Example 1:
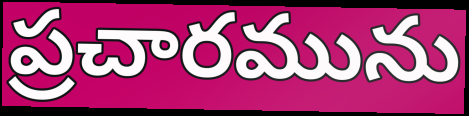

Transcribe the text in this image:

ప్రచారమును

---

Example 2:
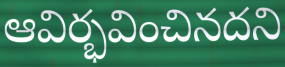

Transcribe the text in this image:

ఆవిర్భవించినదని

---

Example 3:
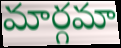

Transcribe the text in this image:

మార్గమా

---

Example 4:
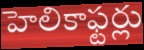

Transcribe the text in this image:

హెలికాఫ్టర్లు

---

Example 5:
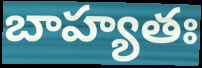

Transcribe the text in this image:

బాహ్యతః